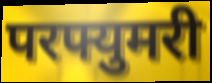
परफ्युमरी